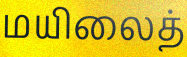
மயிலைத்